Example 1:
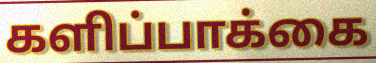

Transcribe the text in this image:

களிப்பாக்கை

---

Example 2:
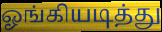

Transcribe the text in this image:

ஓங்கியடித்து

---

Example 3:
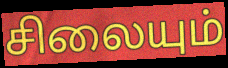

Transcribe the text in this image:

சிலையும்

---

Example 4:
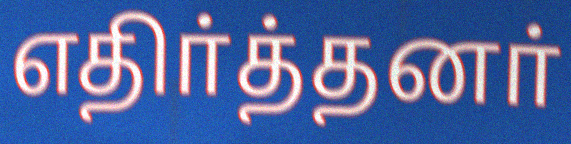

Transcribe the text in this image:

எதிர்த்தனர்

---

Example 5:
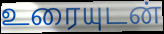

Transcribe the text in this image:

உரையுடன்